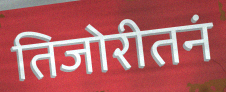
तिजोरीतनं